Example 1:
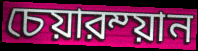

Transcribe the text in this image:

চেয়ারম্য়ান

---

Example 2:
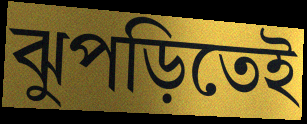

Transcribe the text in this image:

ঝুপড়িতেই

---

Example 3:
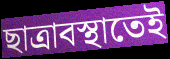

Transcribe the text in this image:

ছাত্রাবস্থাতেই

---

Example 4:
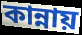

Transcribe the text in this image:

কান্নায়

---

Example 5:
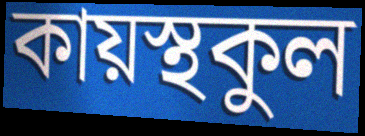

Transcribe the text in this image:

কায়স্থকুল